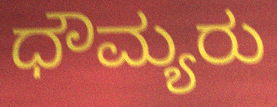
ಧೌಮ್ಯರು